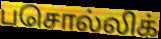
பசொல்லிக்